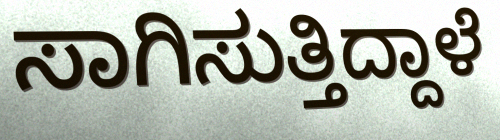
ಸಾಗಿಸುತ್ತಿದ್ದಾಳೆ